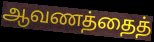
ஆவணத்தைத்